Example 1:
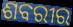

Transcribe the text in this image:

ଶବରୀର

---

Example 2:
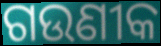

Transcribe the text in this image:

ଗଉଣୀକ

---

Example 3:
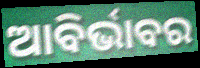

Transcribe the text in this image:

ଆବିର୍ଭାବର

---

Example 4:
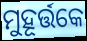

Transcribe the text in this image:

ମୁହୂର୍ତ୍ତକେ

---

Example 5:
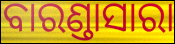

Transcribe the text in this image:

ବାରଣ୍ଡାସାରା